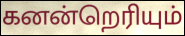
கனன்றெரியும்